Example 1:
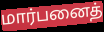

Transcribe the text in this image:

மார்பனைத்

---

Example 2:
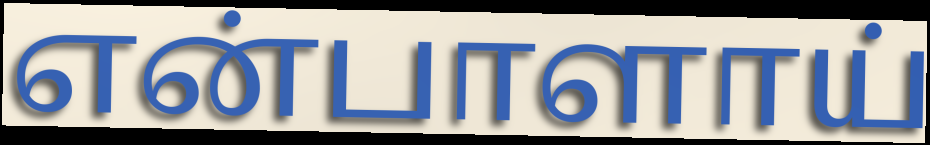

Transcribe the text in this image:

என்பாளாய்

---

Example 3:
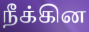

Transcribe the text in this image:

நீக்கின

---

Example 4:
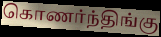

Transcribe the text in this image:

கொணர்ந்திங்கு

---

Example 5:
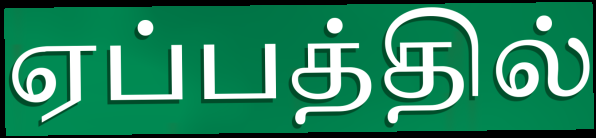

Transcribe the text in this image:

ஏப்பத்தில்